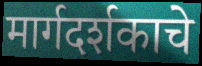
मार्गदर्शकाचे